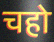
चहो